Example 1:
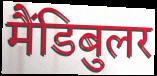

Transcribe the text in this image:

मैंडिबुलर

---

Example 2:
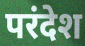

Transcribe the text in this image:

परंदेश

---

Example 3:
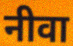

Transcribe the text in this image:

नीवा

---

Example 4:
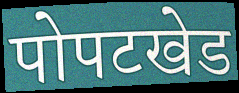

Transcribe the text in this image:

पोपटखेड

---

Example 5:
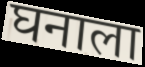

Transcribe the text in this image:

घनाला